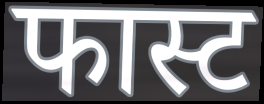
फास्ट